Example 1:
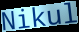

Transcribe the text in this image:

Nikul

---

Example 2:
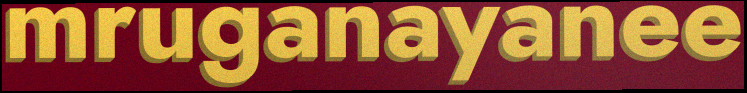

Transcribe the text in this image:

mruganayanee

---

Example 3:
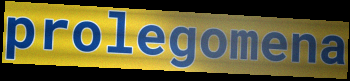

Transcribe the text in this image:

prolegomena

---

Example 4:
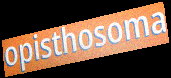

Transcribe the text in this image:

opisthosoma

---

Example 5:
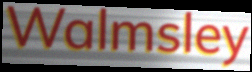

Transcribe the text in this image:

Walmsley